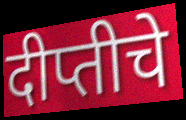
दीप्तीचे